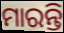
ମାରନ୍ତି